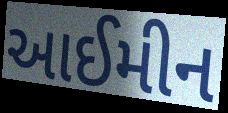
આઈમીન